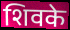
शिवके